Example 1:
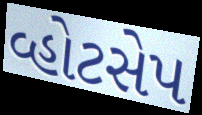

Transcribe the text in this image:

વ્હોટસેપ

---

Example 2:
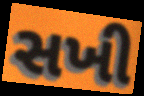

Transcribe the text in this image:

સખી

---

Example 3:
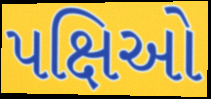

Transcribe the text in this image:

પક્ષિઓ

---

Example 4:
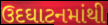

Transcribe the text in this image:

ઉદઘાટનમાંથી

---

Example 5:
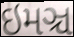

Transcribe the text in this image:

ઇમઞ્ચ